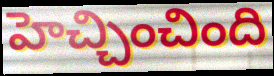
హెచ్చించింది